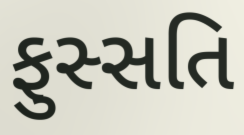
ફુસ્સતિ